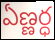
ఏణ్ణర్ధ